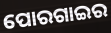
ପୋରଗାଇର